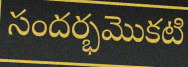
సందర్భమొకటి